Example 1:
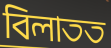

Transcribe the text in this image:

বিলাতত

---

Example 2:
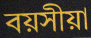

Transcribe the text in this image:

বয়সীয়া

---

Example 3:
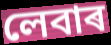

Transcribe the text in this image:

লেবাৰ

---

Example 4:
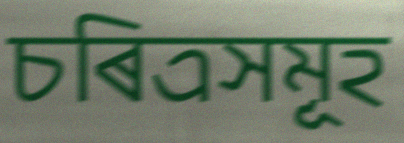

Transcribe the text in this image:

চৰিত্ৰসমূহ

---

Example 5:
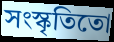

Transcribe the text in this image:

সংস্কৃতিতো